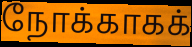
நோக்காகக்